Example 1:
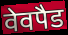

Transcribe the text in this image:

वेवपैड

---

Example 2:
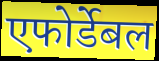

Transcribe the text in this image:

एफोर्डेबल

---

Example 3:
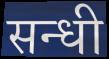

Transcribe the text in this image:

सन्धी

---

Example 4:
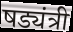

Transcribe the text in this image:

षड्यंत्री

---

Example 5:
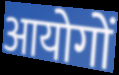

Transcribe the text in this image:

आयोगों